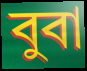
বুবা